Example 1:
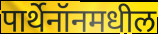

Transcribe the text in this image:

पार्थेनॉनमधील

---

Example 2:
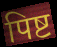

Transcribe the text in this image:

पिष्ट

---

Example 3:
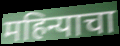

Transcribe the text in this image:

महिन्याचा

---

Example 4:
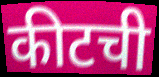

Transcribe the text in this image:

कीटची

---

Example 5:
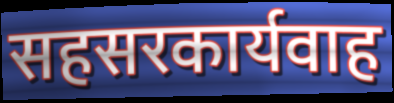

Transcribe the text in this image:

सहसरकार्यवाह